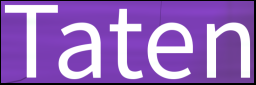
Taten